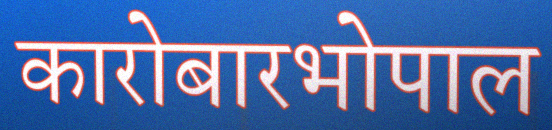
कारोबारभोपाल